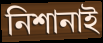
নিশানাই